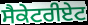
ਸੈਕੇਟਰੀਏਟ